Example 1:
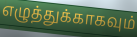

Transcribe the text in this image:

எழுத்துக்காகவும்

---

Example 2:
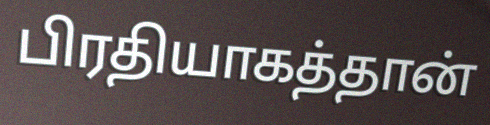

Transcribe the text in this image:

பிரதியாகத்தான்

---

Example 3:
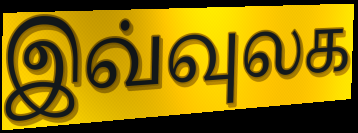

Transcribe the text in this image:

இவ்வுலக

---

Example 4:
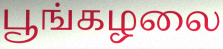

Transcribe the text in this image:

பூங்கழலை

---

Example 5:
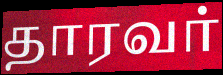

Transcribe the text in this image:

தாரவர்